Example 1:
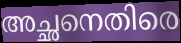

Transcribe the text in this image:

അച്ഛനെതിരെ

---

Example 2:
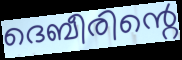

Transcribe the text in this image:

ദെബീരിന്റെ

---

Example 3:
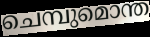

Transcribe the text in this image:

ചെമ്പുമൊന്ത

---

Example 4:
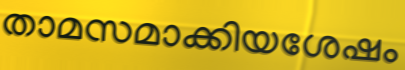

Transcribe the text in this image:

താമസമാക്കിയശേഷം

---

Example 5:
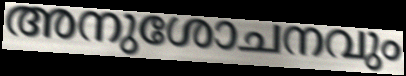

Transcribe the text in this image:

അനുശോചനവും